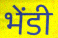
भेंडी